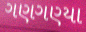
ગણગણ્યા